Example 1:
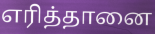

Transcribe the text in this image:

எரித்தானை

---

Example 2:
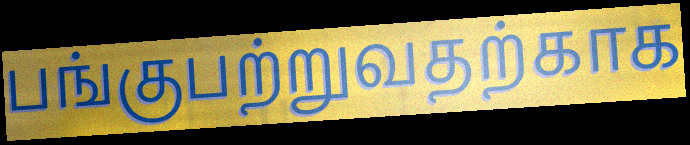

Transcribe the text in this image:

பங்குபற்றுவதற்காக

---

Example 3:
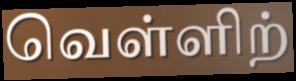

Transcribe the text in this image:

வெள்ளிற்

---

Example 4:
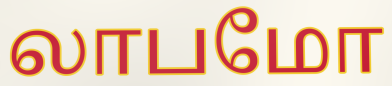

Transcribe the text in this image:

லாபமோ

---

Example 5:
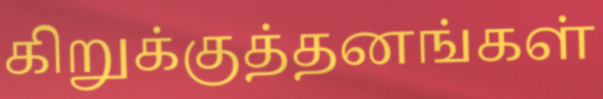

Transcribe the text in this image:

கிறுக்குத்தனங்கள்